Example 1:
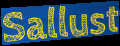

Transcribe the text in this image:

Sallust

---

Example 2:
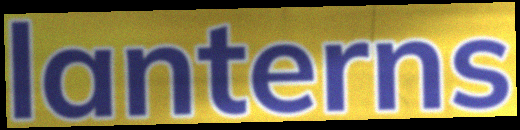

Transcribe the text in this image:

lanterns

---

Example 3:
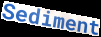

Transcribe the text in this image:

Sediment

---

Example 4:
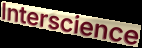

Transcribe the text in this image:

Interscience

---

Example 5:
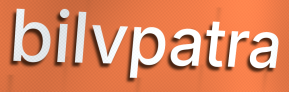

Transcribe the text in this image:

bilvpatra